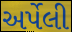
અર્પેલી